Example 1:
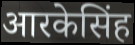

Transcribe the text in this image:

आरकेसिंह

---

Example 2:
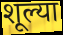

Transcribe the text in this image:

शूल्या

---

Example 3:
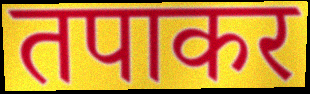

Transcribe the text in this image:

तपाकर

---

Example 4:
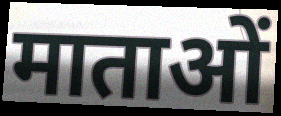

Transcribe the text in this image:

माताओं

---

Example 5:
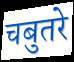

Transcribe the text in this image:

चबुतरे